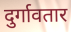
दुर्गावतार